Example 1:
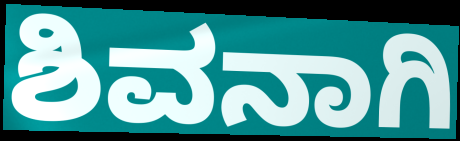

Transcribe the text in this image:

ಶಿವನಾಗಿ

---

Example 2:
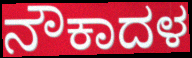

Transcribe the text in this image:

ನೌಕಾದಳ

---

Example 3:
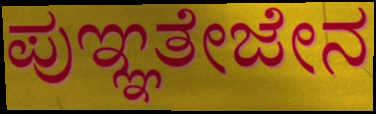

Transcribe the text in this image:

ಪುಞ್ಞತೇಜೇನ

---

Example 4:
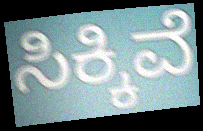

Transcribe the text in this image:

ಸಿಕ್ಕಿವೆ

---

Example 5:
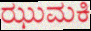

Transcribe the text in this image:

ಝುಮಕಿ